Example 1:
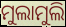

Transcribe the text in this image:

ମୁଲାମୁଲି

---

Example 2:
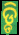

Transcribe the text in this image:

ଡ଼୍ଡି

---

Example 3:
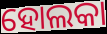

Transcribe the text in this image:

ହୋଲକା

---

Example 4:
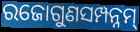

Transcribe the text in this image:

ରଜୋଗୁଣସମ୍ପନ୍ନମ୍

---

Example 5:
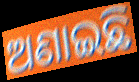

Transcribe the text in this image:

ଅଣାଇଛି